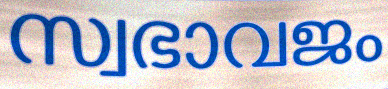
സ്വഭാവജം